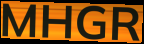
MHGR